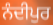
ਨੰਦੀਪੁਰ